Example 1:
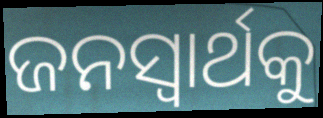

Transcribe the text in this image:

ଜନସ୍ବାର୍ଥକୁ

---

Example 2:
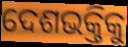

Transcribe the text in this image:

ଦେଶଭକ୍ତିକୁ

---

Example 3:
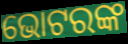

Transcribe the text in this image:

ଭୋଟରଙ୍କ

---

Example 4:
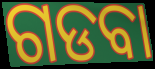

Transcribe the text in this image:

ଗଡବା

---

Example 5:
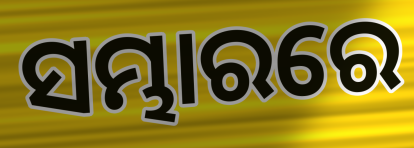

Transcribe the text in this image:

ସମ୍ଭାରରେ